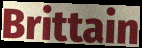
Brittain